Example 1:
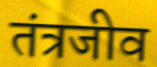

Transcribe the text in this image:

तंत्रजीव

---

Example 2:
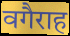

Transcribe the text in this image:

वगैराह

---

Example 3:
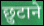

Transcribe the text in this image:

छुटाने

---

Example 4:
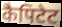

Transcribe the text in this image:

कैपिटेट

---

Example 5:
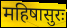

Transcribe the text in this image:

महिषासुरः